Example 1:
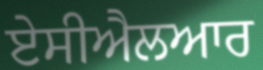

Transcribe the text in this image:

ਏਸੀਐਲਆਰ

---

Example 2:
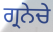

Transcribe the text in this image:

ਗ੍ਰਨੇਚੇ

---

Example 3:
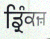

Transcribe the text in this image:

ਡ੍ਰਿੰਕਜ਼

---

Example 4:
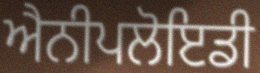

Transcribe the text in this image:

ਐਨੀਪਲੋਇਡੀ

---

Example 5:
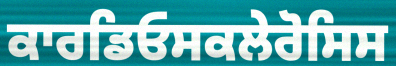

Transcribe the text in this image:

ਕਾਰਡਿਓਸਕਲੇਰੋਸਿਸ